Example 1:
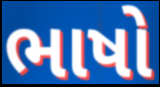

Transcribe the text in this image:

ભાષો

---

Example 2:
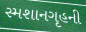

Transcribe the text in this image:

સ્મશાનગૃહની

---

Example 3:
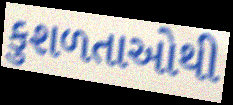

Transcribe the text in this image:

કુશળતાઓથી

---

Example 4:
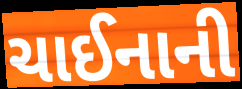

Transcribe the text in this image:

ચાઈનાની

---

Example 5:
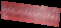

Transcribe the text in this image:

ફુલગંથણીથી